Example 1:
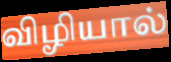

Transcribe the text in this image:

விழியால்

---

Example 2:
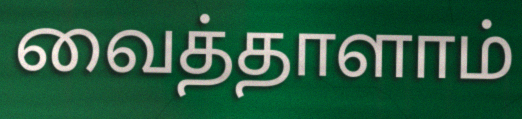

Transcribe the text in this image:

வைத்தாளாம்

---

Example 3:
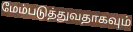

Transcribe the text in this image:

மேம்படுத்துவதாகவும்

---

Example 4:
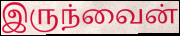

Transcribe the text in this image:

இருந்வைன்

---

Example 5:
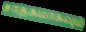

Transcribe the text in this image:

சாதகமாகவும்